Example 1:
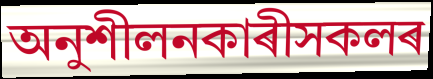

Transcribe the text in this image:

অনুশীলনকাৰীসকলৰ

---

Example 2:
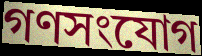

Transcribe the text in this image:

গণসংযোগ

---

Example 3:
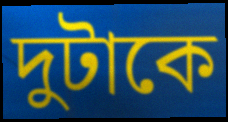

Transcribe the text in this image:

দুটাকে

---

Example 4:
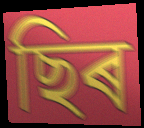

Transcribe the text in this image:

ছিৰ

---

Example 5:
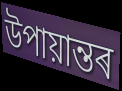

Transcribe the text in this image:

উপায়ান্তৰ